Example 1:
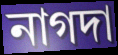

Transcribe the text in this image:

নাগদা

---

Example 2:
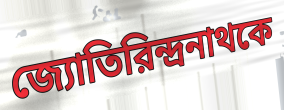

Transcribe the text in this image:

জ্যোতিরিন্দ্রনাথকে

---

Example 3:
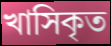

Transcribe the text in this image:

খাসিকৃত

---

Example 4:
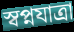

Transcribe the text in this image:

স্বপ্নযাত্রা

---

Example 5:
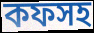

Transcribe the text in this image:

কফসহ